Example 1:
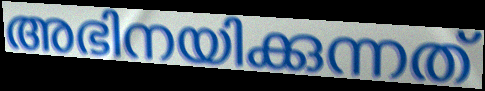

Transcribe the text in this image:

അഭിനയിക്കുന്നത്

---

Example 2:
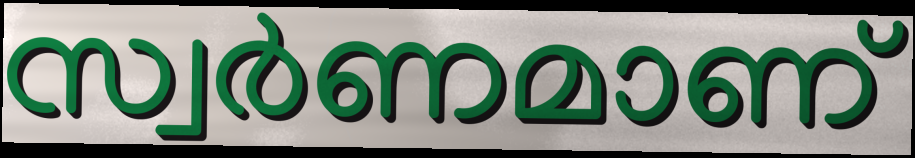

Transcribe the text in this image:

സ്വർണമാണ്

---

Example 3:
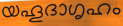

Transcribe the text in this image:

യഹൂദാഗൃഹം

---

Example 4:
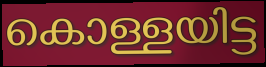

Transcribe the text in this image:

കൊള്ളയിട്ട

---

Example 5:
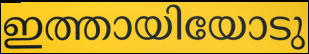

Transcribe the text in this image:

ഇത്തായിയോടു